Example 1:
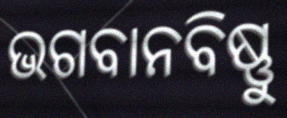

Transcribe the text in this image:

ଭଗବାନବିଷ୍ଣୁ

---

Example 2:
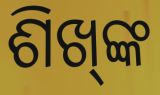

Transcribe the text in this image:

ଶିଖ୍‍ଙ୍କ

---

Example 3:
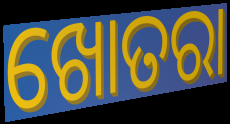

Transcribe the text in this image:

ଖୋତରା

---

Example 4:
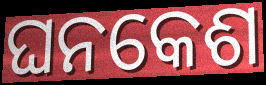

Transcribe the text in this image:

ଘନକେଶ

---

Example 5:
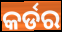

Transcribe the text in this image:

କର୍ଡର